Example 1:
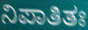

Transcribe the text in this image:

ನಿಪಾತಿತಃ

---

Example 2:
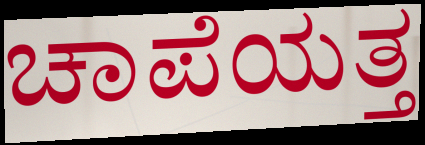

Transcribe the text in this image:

ಚಾಪೆಯತ್ತ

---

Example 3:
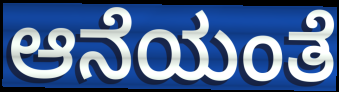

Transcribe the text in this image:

ಆನೆಯಂತೆ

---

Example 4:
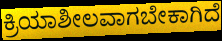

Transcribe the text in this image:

ಕ್ರಿಯಾಶೀಲವಾಗಬೇಕಾಗಿದೆ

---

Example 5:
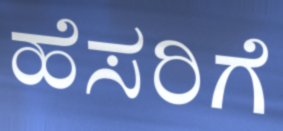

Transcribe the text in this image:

ಹೆಸರಿಗೆ